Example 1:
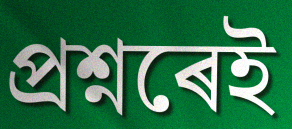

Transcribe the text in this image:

প্ৰশ্নৰেই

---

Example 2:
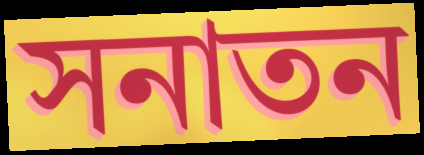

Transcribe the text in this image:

সনাতন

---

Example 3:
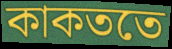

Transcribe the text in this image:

কাকততে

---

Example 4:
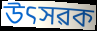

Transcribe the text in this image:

উৎসৱক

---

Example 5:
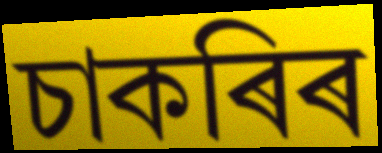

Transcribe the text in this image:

চাকৰিৰ